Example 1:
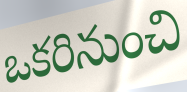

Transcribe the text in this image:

ఒకరినుంచి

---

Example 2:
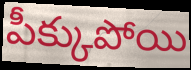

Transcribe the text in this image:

పీక్కుపోయి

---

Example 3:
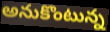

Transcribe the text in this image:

అనుకొంటున్న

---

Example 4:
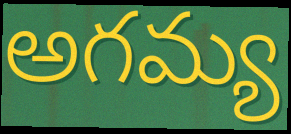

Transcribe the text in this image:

అగమ్య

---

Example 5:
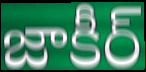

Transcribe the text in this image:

జాకీర్